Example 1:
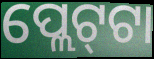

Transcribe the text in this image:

ପ୍ଲେଟ୍‍ଟା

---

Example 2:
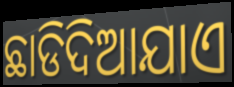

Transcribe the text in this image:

ଛାଡିଦିଆଯାଏ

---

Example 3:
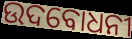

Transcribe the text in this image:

ଉଦବୋଧନୀ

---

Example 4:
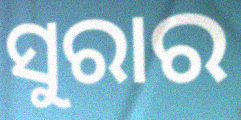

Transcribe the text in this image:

ସୁରାର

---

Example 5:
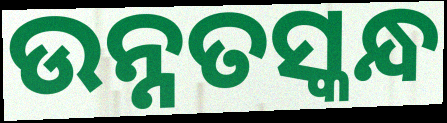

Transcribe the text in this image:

ଉନ୍ନତସ୍କନ୍ଧ